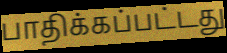
பாதிக்கப்பட்டது